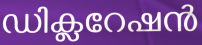
ഡിക്ലറേഷൻ